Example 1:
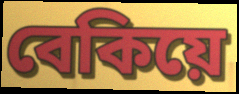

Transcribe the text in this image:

বেকিয়ে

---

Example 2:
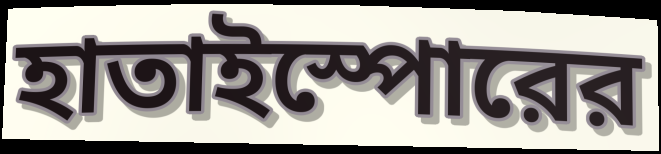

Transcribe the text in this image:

হাতাইস্পোরের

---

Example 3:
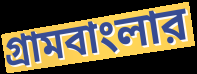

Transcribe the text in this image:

গ্রামবাংলার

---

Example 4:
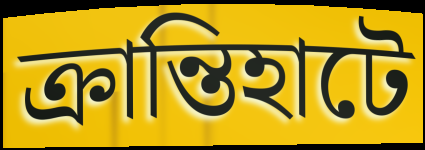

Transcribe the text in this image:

ক্রান্তিহাটে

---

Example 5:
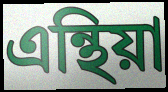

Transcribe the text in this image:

এন্থিয়া